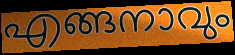
എങ്ങനാവും